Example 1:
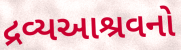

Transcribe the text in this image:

દ્રવ્યઆશ્રવનો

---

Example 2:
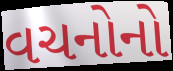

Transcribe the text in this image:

વચનોનો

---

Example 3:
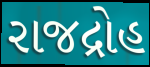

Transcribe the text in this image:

રાજદ્રોહ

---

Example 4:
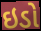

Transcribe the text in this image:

ઇડો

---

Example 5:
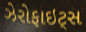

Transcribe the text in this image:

ઝેરોફાઇટ્સ